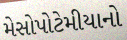
મેસોપોટેમીયાનો